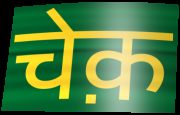
चेक़